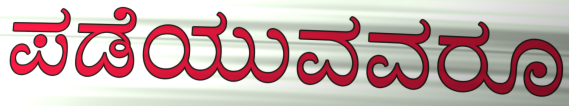
ಪಡೆಯುವವರೂ